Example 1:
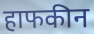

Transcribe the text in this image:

हाफकीन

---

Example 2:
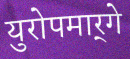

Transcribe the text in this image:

युरोपमार्गे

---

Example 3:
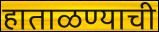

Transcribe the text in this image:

हाताळण्याची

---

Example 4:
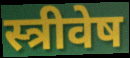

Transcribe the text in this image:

स्त्रीवेष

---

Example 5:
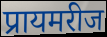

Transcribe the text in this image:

प्रायमरीज